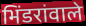
भिंडरांवाले